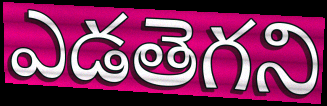
ఎడతెగని